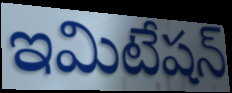
ఇమిటేషన్